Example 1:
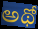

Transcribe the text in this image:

అథో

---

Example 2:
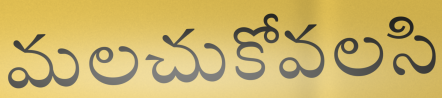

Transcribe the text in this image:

మలచుకోవలసి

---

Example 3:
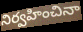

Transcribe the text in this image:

నిర్వహించినా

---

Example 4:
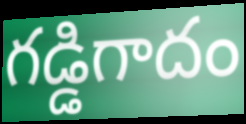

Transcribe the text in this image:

గడ్డిగాదం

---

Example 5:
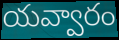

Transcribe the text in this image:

యవ్వారం